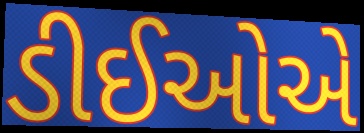
ડીઈઓએ